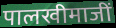
पालखीमाजीं